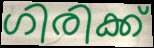
ഗിരിക്ക്